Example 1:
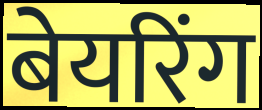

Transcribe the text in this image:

बेयरिंग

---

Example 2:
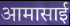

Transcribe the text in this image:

आमासाई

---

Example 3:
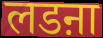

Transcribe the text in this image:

लडऩा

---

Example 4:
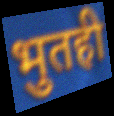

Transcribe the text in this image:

भुतही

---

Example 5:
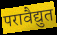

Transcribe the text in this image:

परावैद्युत